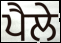
ਪੈਲੇ